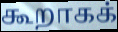
கூறாகக்